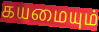
கயமையும்